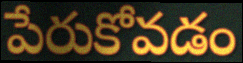
పేరుకోవడం